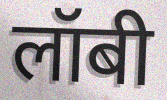
लॉबी